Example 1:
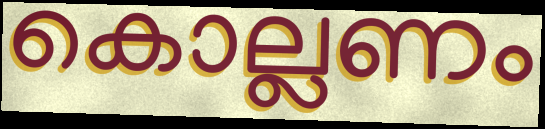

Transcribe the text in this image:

കൊല്ലണം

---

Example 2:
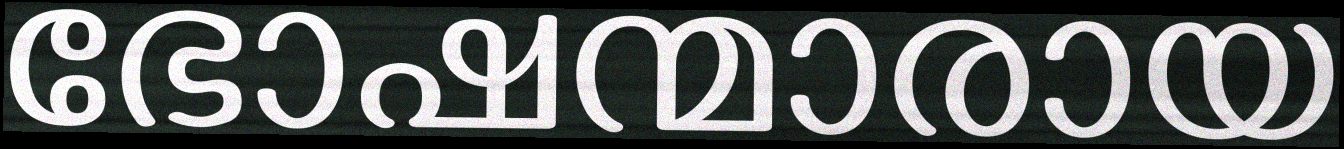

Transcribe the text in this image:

ഭോഷന്മാരായ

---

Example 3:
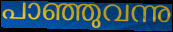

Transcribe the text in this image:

പാഞ്ഞുവന്നു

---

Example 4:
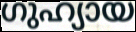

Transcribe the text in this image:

ഗുഹ്യായ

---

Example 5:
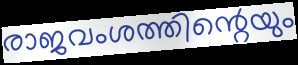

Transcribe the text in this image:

രാജവംശത്തിന്റെയും